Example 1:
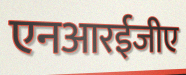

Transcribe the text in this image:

एनआरईजीए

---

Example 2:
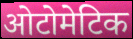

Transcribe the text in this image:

ओटोमेटिक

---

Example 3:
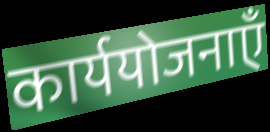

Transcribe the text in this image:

कार्ययोजनाएँ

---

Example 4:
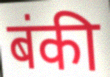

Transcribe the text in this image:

बंकी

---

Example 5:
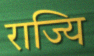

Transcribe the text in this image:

राज्यि